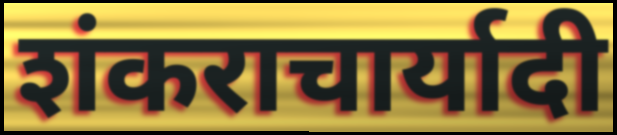
शंकराचार्यादी